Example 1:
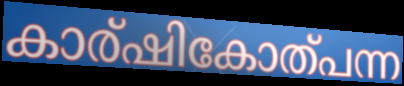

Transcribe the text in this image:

കാര്ഷികോത്പന്ന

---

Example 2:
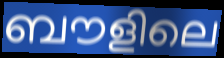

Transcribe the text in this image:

ബൗളിലെ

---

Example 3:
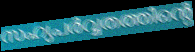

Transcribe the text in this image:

സഹ്യപർവ്വതത്തിന്റെ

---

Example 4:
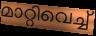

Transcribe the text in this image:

മാറ്റിവെച്ച്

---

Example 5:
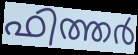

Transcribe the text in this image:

ഫിത്തർ